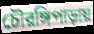
চৌরঙ্গিপাড়ায়